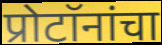
प्रोटॉनांचा